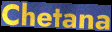
Chetana